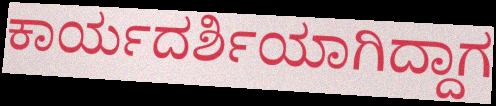
ಕಾರ್ಯದರ್ಶಿಯಾಗಿದ್ದಾಗ